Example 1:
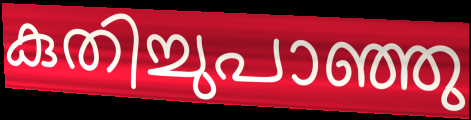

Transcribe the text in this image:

കുതിച്ചുപാഞ്ഞു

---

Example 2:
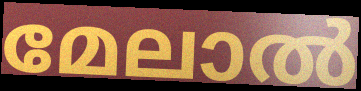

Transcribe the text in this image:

മേലാൽ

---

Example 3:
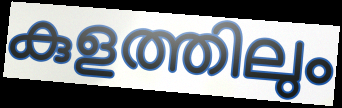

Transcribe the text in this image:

കുളത്തിലും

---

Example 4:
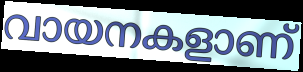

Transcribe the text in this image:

വായനകളാണ്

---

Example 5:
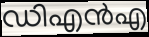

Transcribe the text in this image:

ഡിഎൻഎ